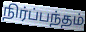
நிர்ப்பந்தம்